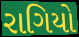
રાગિયો